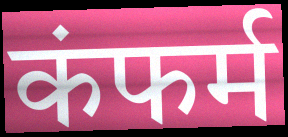
कंफर्म